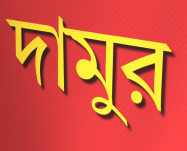
দামুর